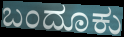
ಬಂದೂಕು